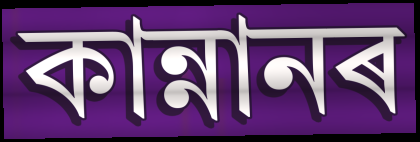
কান্নানৰ